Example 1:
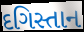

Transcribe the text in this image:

દગિસ્તાન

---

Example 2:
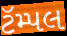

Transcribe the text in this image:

ટૅમ્પલ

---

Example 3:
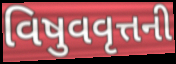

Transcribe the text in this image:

વિષુવવૃત્તની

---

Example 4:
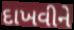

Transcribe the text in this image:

દાખવીને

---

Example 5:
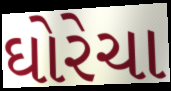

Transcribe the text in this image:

ઘોરેચા